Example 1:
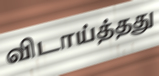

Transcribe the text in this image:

விடாய்த்தது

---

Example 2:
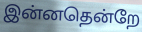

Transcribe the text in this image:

இன்னதென்றே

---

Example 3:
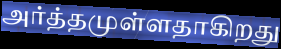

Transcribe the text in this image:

அர்த்தமுள்ளதாகிறது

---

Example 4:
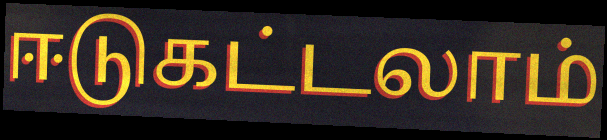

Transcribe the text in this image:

ஈடுகட்டலாம்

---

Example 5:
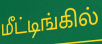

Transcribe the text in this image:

மீட்டிங்கில்